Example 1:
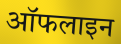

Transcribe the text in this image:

ऑफलाइन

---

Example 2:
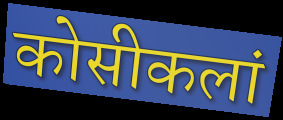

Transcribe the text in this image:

कोसीकलां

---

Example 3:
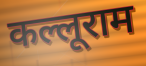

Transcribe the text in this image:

कल्लूराम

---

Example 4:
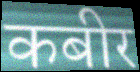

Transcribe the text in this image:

कबीर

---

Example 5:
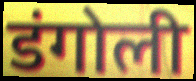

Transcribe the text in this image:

डंगोली